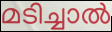
മടിച്ചാൽ